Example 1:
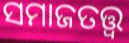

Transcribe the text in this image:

ସମାଜତତ୍ତ୍ବ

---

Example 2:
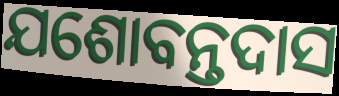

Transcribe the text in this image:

ଯଶୋବନ୍ତଦାସ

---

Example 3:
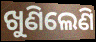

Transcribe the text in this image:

ଖୁଣିଲେଣି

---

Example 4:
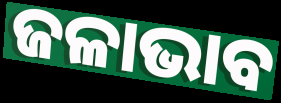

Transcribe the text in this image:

ଜଳାଭାବ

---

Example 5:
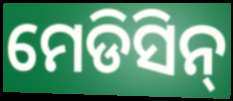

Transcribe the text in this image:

ମେଡିସିନ୍